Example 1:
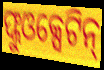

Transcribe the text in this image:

ଫ୍ଲୁଓକ୍ସେଟିନ୍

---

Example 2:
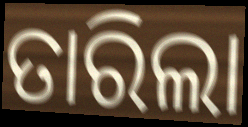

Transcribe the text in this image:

ତାରିଲା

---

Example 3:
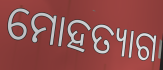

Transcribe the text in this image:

ମୋହତ୍ୟାଗ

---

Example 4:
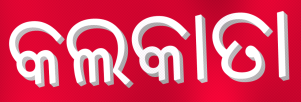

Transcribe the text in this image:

କଲକାତା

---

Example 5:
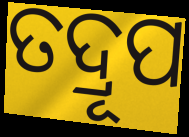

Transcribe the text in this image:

ତଦ୍ରୂପ